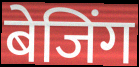
बेजिंग